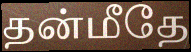
தன்மீதே